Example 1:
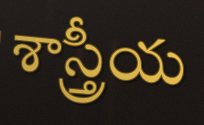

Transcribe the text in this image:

శాస్త్రీయ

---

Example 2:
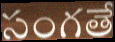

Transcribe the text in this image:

సంగతే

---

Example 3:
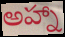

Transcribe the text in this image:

అహ్నా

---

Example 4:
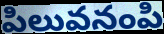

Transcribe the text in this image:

పిలువనంపి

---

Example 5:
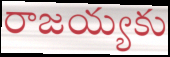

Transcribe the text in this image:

రాజయ్యకు